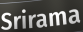
Srirama